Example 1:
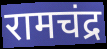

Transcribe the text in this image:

रामचंद्र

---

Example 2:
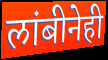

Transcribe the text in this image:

लांबीनेही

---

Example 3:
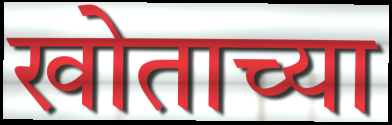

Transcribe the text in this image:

खोताच्या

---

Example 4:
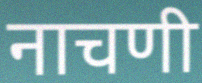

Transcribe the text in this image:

नाचणी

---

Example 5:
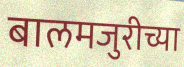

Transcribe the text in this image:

बालमजुरीच्या